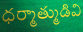
ధర్మాత్ముడివి